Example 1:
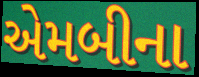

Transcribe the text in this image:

એમબીના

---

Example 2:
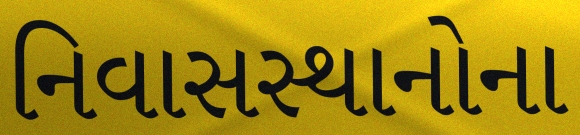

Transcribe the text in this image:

નિવાસસ્થાનોના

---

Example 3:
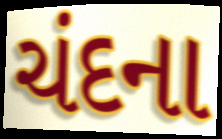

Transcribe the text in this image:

ચંદના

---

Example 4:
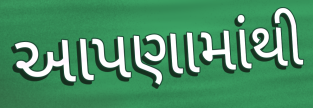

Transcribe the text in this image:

આપણામાંથી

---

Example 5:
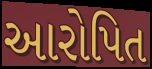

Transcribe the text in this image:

આરોપિત